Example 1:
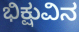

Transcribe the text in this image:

ಭಿಕ್ಷುವಿನ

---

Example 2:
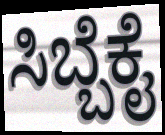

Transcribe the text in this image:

ಸಿಬ್ಬೆಕೈ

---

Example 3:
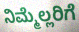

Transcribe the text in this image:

ನಿಮ್ಮೆಲ್ಲರಿಗೆ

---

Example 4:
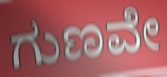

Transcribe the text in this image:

ಗುಣವೇ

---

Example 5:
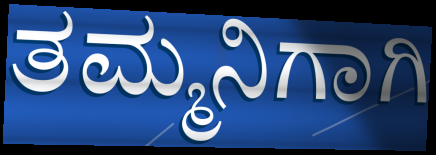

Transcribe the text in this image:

ತಮ್ಮನಿಗಾಗಿ